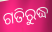
ଗତିରୁଦ୍ଧ